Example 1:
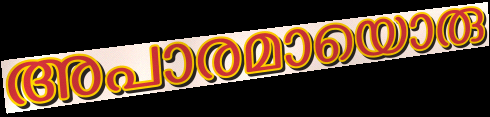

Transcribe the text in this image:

അപാരമായൊരു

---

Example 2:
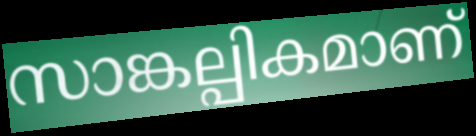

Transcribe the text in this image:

സാങ്കല്പികമാണ്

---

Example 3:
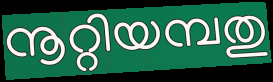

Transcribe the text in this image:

നൂറ്റിയമ്പതു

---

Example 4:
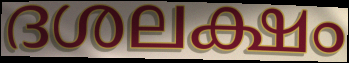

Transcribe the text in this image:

ദശലക്ഷം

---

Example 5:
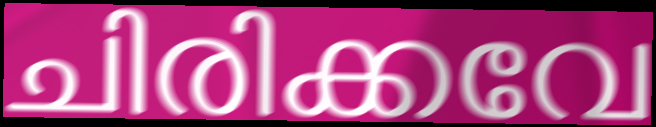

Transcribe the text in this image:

ചിരിക്കവേ